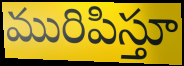
మురిపిస్తూ